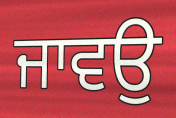
ਜਾਵਉ